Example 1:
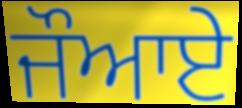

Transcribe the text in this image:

ਜੌਆਏ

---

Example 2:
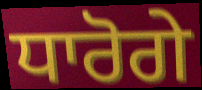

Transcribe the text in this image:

ਧਾਰੋਗੇ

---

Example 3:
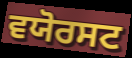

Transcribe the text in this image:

ਵਯੋਰਸਟ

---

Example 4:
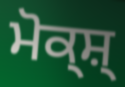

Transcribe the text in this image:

ਮੋਕ੍ਸ਼੍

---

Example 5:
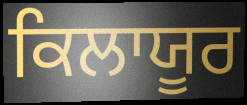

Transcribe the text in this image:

ਕਿਲਾਯੂਰ